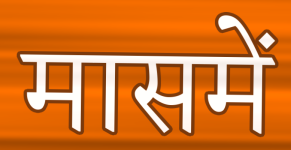
मासमें